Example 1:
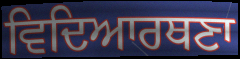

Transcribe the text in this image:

ਵਿਦਿਆਰਥਣਾ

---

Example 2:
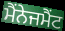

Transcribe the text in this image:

ਮੈਂਨੇਜਮੈਂਟ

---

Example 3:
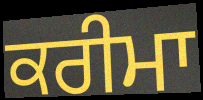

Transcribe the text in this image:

ਕਰੀਮਾ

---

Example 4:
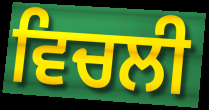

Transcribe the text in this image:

ਵਿਚਲੀ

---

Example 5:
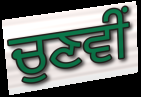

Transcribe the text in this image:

ਚੁਣਵੀਂ